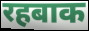
रहबाक